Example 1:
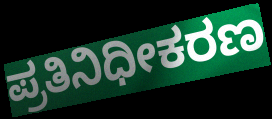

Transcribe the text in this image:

ಪ್ರತಿನಿಧೀಕರಣ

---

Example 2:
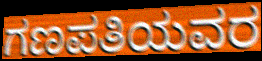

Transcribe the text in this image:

ಗಣಪತಿಯವರ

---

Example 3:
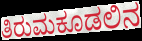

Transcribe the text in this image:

ತಿರುಮಕೂಡಲಿನ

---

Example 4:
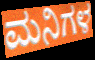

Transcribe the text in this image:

ಮನಿಗಳ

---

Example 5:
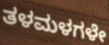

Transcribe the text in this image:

ತಳಮಳಗಳೇ